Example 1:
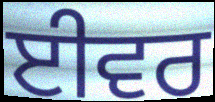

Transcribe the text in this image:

ਈਵਰ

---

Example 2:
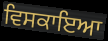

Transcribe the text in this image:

ਵਿਸਕਾਇਆ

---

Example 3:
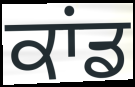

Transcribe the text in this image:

ਕਾਂਡ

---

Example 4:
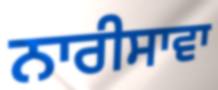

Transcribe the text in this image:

ਨਾਰੀਸਾਵਾ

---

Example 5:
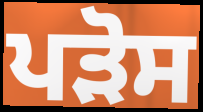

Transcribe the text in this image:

ਪੜੋਸ